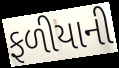
ફળીયાની